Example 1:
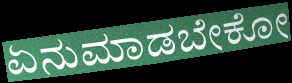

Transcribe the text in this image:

ಏನುಮಾಡಬೇಕೋ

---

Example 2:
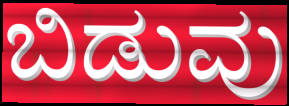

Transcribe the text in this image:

ಬಿಡುವು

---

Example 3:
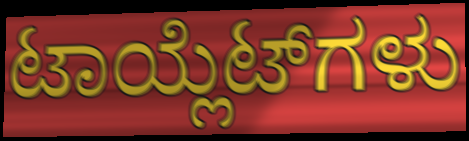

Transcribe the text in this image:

ಟಾಯ್ಲೆಟ್‌ಗಳು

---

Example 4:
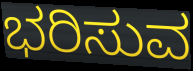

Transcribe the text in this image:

ಭರಿಸುವ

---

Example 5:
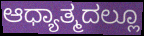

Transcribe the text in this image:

ಆಧ್ಯಾತ್ಮದಲ್ಲೂ